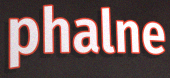
phalne